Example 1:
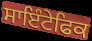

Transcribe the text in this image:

ਸਾਇੰਟੇਫਿਕ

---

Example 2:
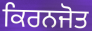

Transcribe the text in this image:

ਕਿਰਨਜੋਤ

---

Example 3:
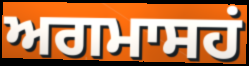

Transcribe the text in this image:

ਅਗਮਾਸਹਂ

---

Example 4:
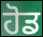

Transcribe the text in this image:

ਹੋਡ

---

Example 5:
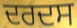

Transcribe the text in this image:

ਦਰਦਸ